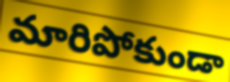
మారిపోకుండా